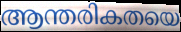
ആന്തരികതയെ